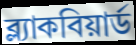
ব্ল্যাকবিয়ার্ড